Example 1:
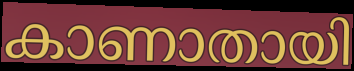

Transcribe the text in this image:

കാണാതായി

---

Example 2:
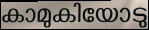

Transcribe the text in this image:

കാമുകിയോടു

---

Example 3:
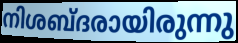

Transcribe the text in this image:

നിശബ്ദരായിരുന്നു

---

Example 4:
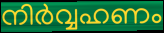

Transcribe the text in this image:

നിർവ്വഹണം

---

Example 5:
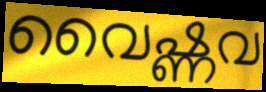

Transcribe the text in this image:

വൈഷ്ണവ